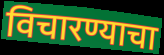
विचारण्याचा